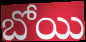
బోయి